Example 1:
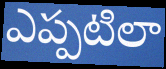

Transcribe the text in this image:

ఎప్పటిలా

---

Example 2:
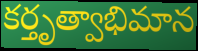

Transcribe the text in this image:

కర్తృత్వాభిమాన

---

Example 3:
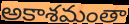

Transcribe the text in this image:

అకాశమంతా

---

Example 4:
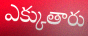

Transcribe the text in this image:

ఎక్కుతారు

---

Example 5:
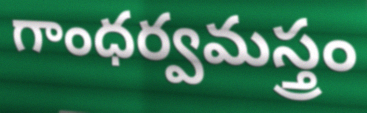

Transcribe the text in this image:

గాంధర్వమస్త్రం